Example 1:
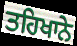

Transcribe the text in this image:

ਤਹਿਖਾਨੇ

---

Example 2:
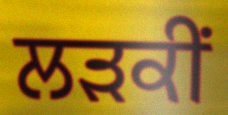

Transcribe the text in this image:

ਲੜਕੀਂ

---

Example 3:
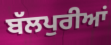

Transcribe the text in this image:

ਬੱਲਪੁਰੀਆਂ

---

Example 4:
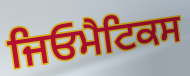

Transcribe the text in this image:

ਜਿਓਮੈਟਿਕਸ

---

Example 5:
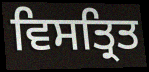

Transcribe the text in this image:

ਵਿਸਤ੍ਰਿਤ